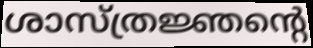
ശാസ്ത്രജ്ഞന്റെ